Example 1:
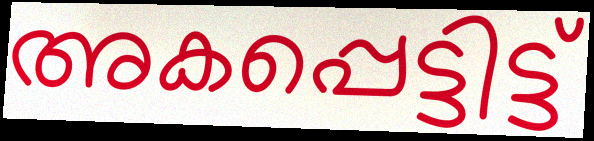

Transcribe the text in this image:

അകപ്പെട്ടിട്ട്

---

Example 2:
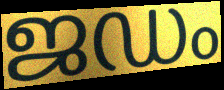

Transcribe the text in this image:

ജഡം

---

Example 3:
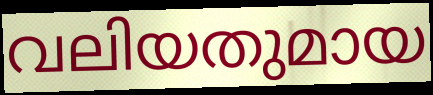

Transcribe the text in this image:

വലിയതുമായ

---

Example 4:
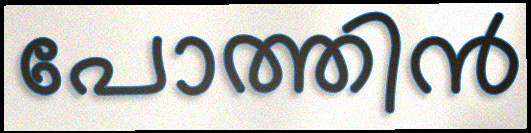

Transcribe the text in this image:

പോത്തിൻ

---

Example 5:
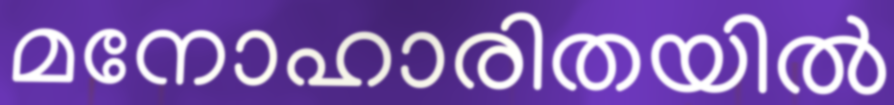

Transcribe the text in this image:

മനോഹാരിതയിൽ